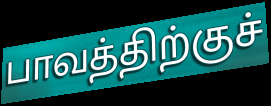
பாவத்திற்குச்